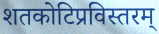
शतकोटिप्रविस्तरम्